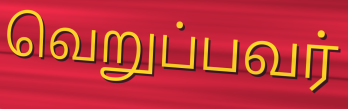
வெறுப்பவர்